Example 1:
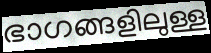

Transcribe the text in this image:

ഭാഗങ്ങളിലുള്ള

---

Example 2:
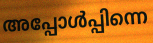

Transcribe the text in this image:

അപ്പോൾപ്പിന്നെ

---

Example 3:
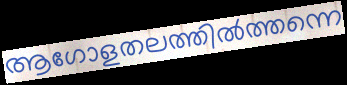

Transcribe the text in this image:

ആഗോളതലത്തിൽത്തന്നെ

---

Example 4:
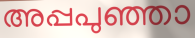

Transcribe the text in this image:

അപ്പപുഞ്ഞാ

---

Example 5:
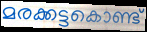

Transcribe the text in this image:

മരക്കട്ടകൊണ്ട്